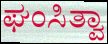
ಘಂಸಿತ್ವಾ